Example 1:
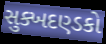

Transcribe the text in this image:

સુક્ખદણ્ડકો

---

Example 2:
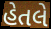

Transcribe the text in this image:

હેતલે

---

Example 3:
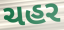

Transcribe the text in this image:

ચહર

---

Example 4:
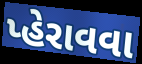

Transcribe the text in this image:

પ્હેરાવવા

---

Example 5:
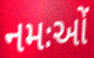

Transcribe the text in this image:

નમઃઓં